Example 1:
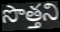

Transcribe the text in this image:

సొత్తని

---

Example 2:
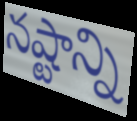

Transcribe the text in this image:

నష్టాన్ని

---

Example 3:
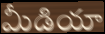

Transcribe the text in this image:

మీడియా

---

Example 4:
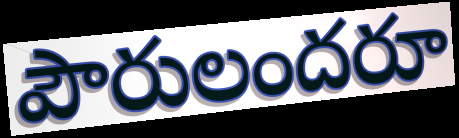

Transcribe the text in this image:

పౌరులందరూ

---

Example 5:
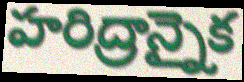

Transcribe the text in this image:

హరిద్రాన్నైక